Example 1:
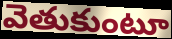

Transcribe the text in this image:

వెతుకుంటూ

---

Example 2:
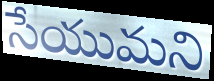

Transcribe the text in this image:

సేయుమని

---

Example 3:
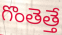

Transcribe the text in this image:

గొంతెత్తే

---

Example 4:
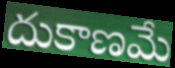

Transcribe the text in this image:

దుకాణమే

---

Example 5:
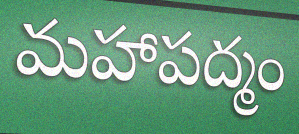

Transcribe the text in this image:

మహాపద్మం